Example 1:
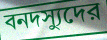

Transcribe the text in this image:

বনদস্যুদের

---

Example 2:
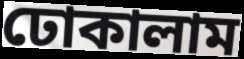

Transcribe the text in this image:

ঢোকালাম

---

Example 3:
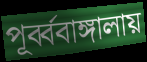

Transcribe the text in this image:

পূর্ব্ববাঙ্গালায়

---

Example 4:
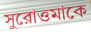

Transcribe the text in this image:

সুরোত্তমাকে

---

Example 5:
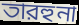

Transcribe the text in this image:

তারহুনা